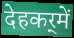
देहकर्में